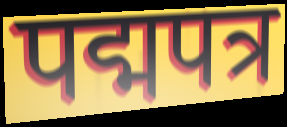
पद्मपत्र